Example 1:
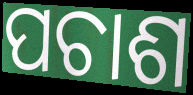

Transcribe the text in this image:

ପଚାଶ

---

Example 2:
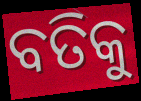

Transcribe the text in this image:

ବତିକୁ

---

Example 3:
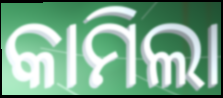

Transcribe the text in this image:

କାମିଲା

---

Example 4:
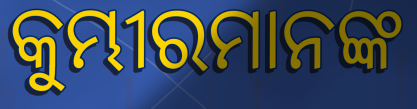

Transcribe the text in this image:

କୁମ୍ଭୀରମାନଙ୍କ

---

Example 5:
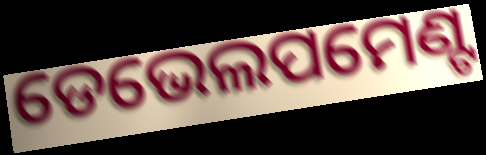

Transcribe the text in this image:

ଡେଭେଲପମେଣ୍ଟ